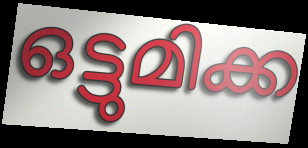
ഒട്ടുമിക്ക